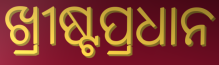
ଖ୍ରୀଷ୍ଟପ୍ରଧାନ